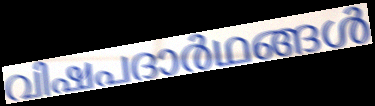
വിഷപദാർഥങ്ങൾ